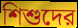
শিশুদের